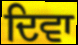
ਦਿਵਾ